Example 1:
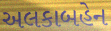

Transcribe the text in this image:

અલકાબહેન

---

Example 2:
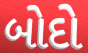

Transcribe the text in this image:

બોદો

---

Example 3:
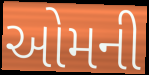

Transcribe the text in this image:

ઓમની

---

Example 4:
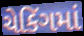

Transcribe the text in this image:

ચેકિંગમાં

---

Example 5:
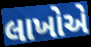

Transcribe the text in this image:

લાખોએ